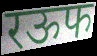
रऊफ